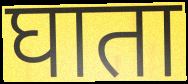
घाता